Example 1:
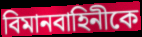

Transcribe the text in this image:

বিমানবাহিনীকে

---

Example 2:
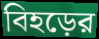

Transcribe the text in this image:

বিহড়ের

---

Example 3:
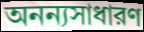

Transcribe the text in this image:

অনন্যসাধারণ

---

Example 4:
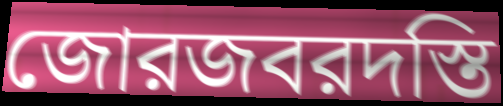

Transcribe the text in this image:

জোরজবরদস্তি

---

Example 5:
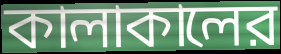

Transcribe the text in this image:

কালাকালের